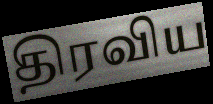
திரவிய